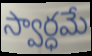
స్వార్ధమే